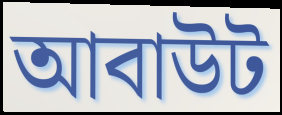
আবাউট